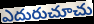
ఎదురుచూచు